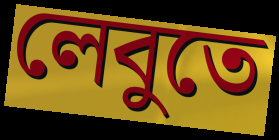
লেবুতে